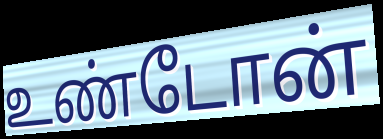
உண்டோன்